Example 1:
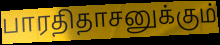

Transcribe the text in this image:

பாரதிதாசனுக்கும்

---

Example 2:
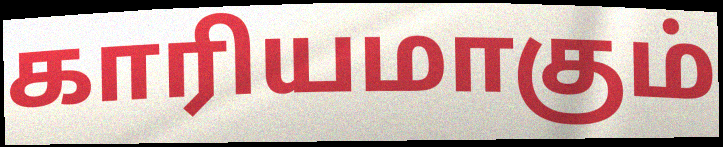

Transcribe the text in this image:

காரியமாகும்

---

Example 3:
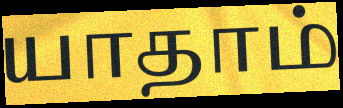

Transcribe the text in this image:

யாதாம்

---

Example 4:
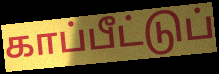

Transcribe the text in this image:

காப்பீட்டுப்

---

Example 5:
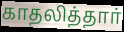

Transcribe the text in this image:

காதலித்தார்